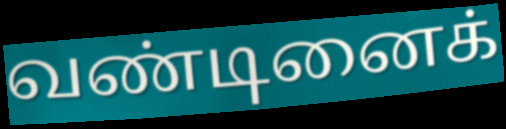
வண்டினைக்